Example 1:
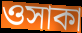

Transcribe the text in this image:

ওসাকা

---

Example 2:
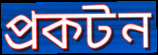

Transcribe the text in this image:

প্রকটন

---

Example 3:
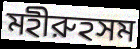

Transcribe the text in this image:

মহীরুহসম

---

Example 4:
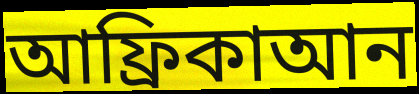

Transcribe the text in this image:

আফ্রিকাআন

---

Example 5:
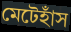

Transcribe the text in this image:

মেটেহাঁস